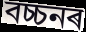
বচ্চনৰ